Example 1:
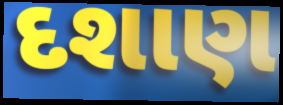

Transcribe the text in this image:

દશાણ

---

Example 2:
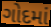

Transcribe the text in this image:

ગોદમાં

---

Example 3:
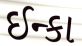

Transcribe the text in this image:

ઈન્કા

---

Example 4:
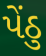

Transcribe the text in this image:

પેંઠુ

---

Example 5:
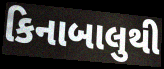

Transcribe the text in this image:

કિનાબાલુથી